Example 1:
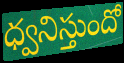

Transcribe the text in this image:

ధ్వనిస్తుందో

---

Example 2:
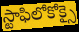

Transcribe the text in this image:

స్టాఫిలోకోక్సై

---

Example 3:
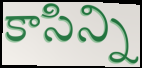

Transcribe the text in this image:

కాసిన్ని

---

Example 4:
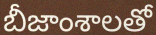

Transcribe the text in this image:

బీజాంశాలతో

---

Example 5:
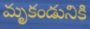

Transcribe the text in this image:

మృకండునికి